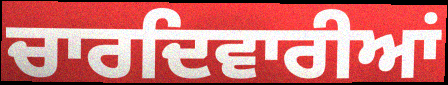
ਚਾਰਦਿਵਾਰੀਆਂ